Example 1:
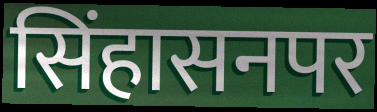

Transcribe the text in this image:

सिंहासनपर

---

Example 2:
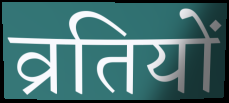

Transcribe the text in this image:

व्रतियों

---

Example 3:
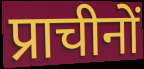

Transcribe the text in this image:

प्राचीनों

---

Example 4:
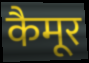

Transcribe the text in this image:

कैमूर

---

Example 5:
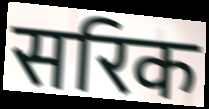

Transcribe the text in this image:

सरिक